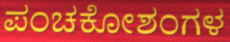
ಪಂಚಕೋಶಂಗಳ